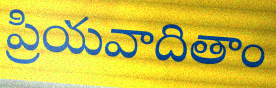
ప్రియవాదితాం